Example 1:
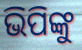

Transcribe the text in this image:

ଭିପିଙ୍କୁ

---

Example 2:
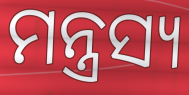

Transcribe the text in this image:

ମନ୍ତ୍ରସ୍ୟ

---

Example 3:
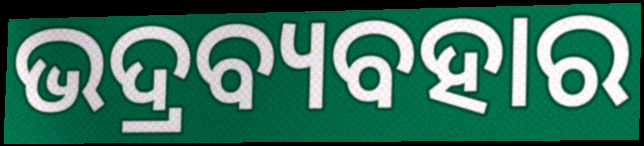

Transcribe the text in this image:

ଭଦ୍ରବ୍ୟବହାର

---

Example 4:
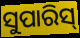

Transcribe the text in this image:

ସୁପାରିସ୍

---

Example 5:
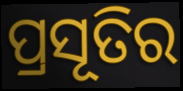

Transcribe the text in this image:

ପ୍ରସୂତିର